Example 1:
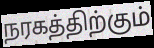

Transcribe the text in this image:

நரகத்திற்கும்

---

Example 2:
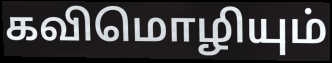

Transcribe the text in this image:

கவிமொழியும்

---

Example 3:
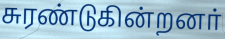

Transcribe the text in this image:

சுரண்டுகின்றனர்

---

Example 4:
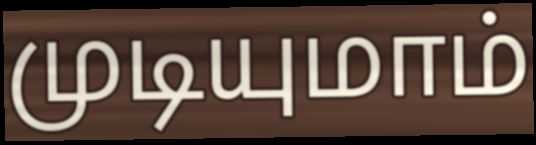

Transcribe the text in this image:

முடியுமாம்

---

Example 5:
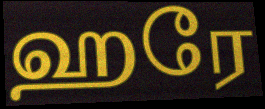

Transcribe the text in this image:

ஹரே